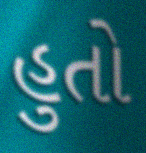
હુતો